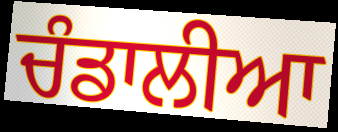
ਚੰਡਾਲੀਆ